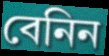
বেনিন